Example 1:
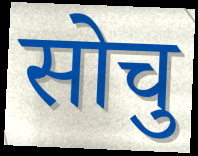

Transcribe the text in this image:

सोचु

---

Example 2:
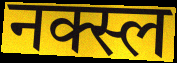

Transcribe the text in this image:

नक्स्ल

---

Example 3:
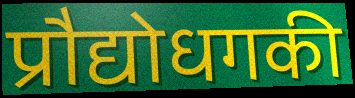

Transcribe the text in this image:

प्रौद्योधगकी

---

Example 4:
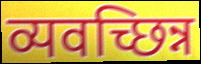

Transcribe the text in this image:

व्यवच्छिन्न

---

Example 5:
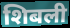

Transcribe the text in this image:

शिबली